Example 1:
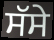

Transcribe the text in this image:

ਸੱਸੇ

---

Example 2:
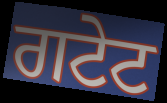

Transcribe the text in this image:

ਗਟੇਟ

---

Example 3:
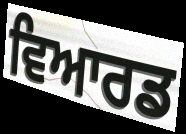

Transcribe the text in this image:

ਵਿਆਰਡ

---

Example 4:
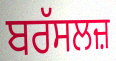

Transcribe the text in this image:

ਬਰੱਸਲਜ਼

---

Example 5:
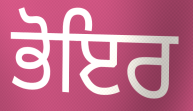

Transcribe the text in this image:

ਭੋਇਰ